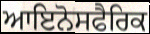
ਆਇਨੋਸਫੈਰਿਕ